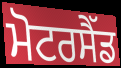
ਮੋਟਰਸੈੱਡ